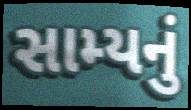
સામ્યનું